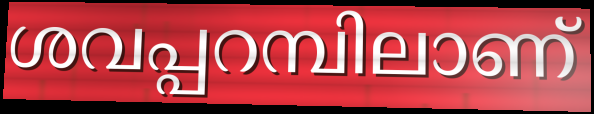
ശവപ്പറമ്പിലാണ്